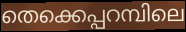
തെക്കെപ്പറമ്പിലെ